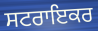
ਸਟਰਾਇਕਰ